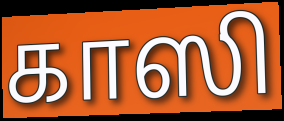
காஸி